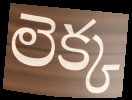
లెక్క